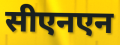
सीएनएन